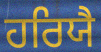
ਹਰਿਯੈ